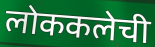
लोककलेची